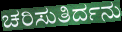
ಚರಿಸುತಿರ್ದನು